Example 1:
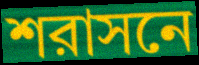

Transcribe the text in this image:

শরাসনে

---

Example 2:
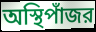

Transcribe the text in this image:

অস্থিপাঁজর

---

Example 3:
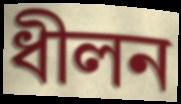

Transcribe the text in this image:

ধীলন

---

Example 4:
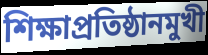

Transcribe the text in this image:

শিক্ষাপ্রতিষ্ঠানমুখী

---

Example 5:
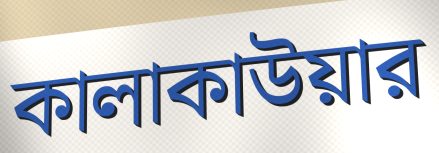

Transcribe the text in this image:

কালাকাউয়ার